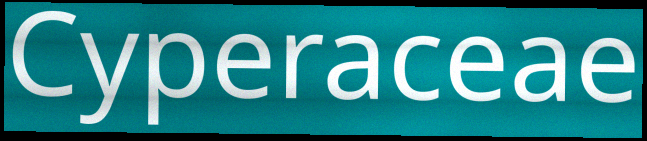
Cyperaceae